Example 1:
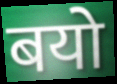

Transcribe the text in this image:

बयो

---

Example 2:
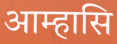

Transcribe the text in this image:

आम्हासि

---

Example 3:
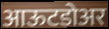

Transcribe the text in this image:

आऊटडोअर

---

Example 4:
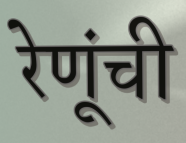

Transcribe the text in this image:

रेणूंची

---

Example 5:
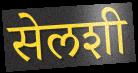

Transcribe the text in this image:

सेलशी